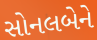
સોનલબેને